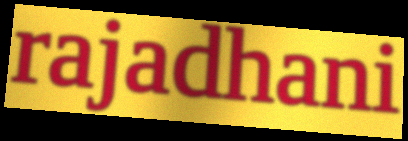
rajadhani